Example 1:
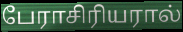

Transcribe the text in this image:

பேராசிரியரால்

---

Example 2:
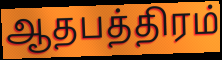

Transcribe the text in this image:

ஆதபத்திரம்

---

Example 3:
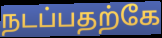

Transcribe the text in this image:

நடப்பதற்கே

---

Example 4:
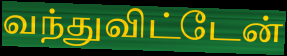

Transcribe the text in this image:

வந்துவிட்டேன்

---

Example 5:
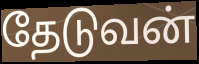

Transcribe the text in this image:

தேடுவன்